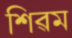
শিৱম